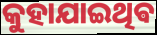
କୁହାଯାଇଥିଵ